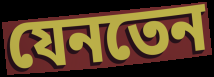
যেনতেন